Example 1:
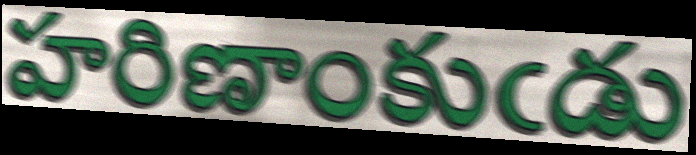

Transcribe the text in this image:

హరిణాంకుఁడు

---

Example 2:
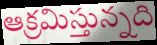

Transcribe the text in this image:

ఆక్రమిస్తున్నది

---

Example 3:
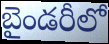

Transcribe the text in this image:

బైండరీలో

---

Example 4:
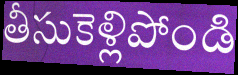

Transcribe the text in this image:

తీసుకెళ్లిపోండి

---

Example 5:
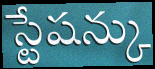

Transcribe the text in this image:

స్టేషన్కు